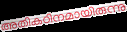
അതികഠിനമായിരുന്നു